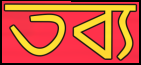
তব্য